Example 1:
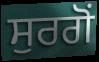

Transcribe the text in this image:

ਸੁਰਗੋਂ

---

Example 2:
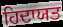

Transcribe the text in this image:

ਹਿਦਾਯਤ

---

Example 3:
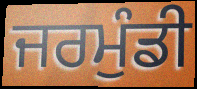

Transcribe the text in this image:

ਜਰਮੁੰਡੀ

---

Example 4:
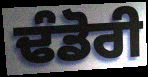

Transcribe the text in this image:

ਢੰਡੋਰੀ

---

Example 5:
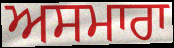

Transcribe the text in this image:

ਅਸਮਾਰਾ